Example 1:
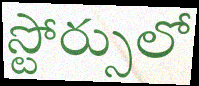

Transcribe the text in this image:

స్టోర్సులో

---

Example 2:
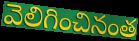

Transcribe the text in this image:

వెలిగించినంత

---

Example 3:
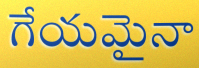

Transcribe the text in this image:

గేయమైనా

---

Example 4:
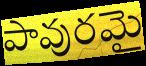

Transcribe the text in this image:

పావురమై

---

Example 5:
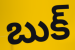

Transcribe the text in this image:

బుక్